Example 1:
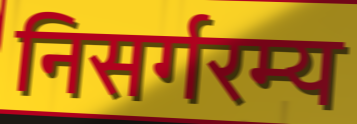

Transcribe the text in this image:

निसर्गरम्य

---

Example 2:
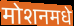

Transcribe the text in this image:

मोशनमधे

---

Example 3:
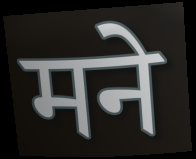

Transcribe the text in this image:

मने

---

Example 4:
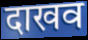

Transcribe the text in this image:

दाखव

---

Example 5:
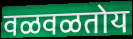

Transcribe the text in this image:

वळवळतोय